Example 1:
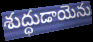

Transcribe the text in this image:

శుద్ధుడాయెను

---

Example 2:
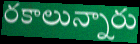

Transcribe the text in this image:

రకాలున్నారు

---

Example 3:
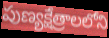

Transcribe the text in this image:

పుణ్యక్షేత్రాలలోని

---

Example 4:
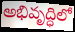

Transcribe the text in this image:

అభివృద్ధిలో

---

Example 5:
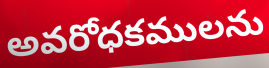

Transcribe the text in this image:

అవరోధకములను